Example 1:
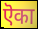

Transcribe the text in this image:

ऎका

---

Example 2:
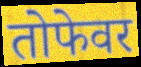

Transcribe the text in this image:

तोफेवर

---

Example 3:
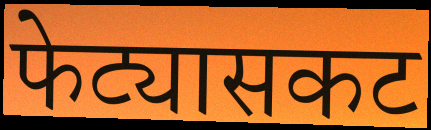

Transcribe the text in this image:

फेट्यासकट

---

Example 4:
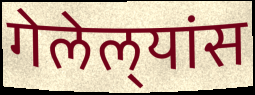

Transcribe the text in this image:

गेलेल्यांस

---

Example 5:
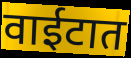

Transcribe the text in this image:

वाईटात